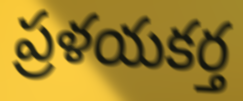
ప్రళయకర్త